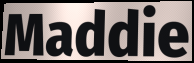
Maddie